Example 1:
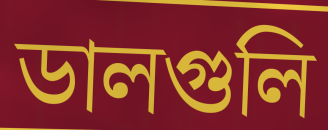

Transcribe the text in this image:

ডালগুলি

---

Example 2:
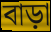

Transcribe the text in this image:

বাড়া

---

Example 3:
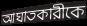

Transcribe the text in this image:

আঘাতকারীকে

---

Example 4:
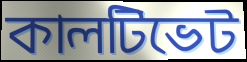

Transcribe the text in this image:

কালটিভেট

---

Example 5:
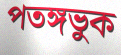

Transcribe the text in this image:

পতঙ্গভুক